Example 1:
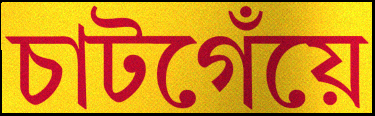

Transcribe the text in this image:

চাটগেঁয়ে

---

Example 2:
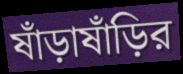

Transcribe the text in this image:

ষাঁড়াষাঁড়ির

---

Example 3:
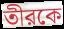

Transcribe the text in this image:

তীরকে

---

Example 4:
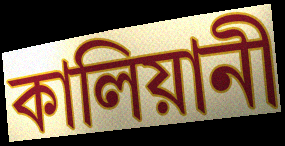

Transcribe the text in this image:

কালিয়ানী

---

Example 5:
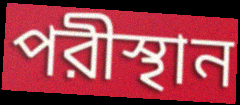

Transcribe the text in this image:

পরীস্থান